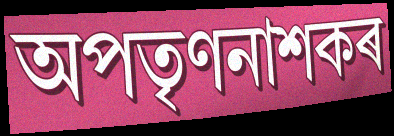
অপতৃণনাশকৰ